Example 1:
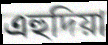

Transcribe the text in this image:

এহুদিয়া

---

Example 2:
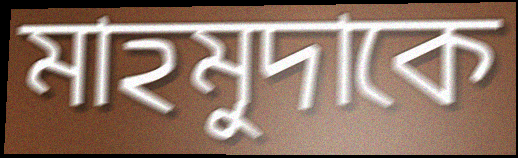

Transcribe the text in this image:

মাহমুদাকে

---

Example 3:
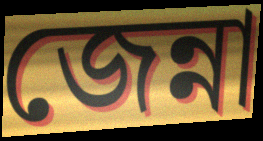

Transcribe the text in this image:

জেন্না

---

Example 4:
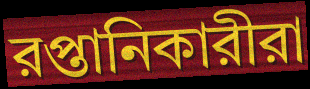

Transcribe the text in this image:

রপ্তানিকারীরা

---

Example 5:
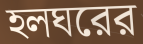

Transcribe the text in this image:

হলঘরের